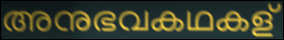
അനുഭവകഥകള്